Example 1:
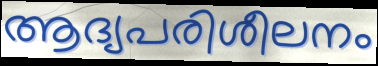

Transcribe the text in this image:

ആദ്യപരിശീലനം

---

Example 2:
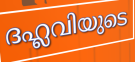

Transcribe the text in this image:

ദഹ്ലവിയുടെ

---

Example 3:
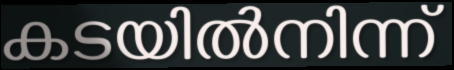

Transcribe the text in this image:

കടയിൽനിന്ന്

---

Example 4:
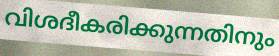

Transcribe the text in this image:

വിശദീകരിക്കുന്നതിനും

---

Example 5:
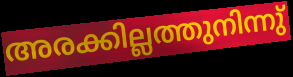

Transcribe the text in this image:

അരക്കില്ലത്തുനിന്നു്